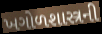
ખગોળશાસ્ત્રની